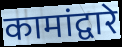
कामांद्वारे